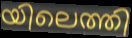
യിലെത്തി